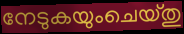
നേടുകയുംചെയ്തു